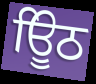
ਊਿਠ